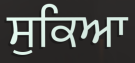
ਸੁਕਿਆ